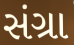
સંગ્રા